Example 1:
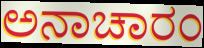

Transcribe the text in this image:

ಅನಾಚಾರಂ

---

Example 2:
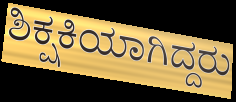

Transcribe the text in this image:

ಶಿಕ್ಷಕಿಯಾಗಿದ್ದರು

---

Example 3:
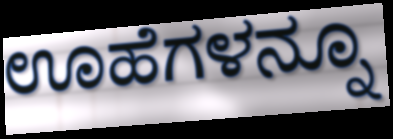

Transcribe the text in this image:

ಊಹೆಗಳನ್ನೂ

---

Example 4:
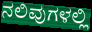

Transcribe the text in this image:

ನಲಿವುಗಳಲ್ಲಿ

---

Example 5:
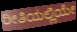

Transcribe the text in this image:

ರೀತಿಯಲ್ಲಿಯೇ